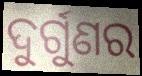
ଦୁର୍ଗୁଣର